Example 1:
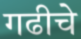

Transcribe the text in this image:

गढीचे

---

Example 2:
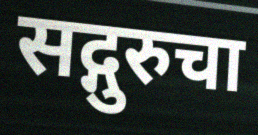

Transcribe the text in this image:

सद्गुरुचा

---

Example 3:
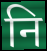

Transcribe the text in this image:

नि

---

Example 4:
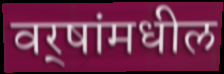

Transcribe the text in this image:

वर्षांमधील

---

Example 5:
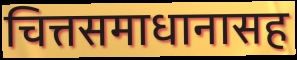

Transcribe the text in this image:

चित्तसमाधानासह